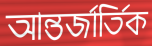
আন্তর্জার্তিক